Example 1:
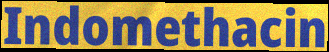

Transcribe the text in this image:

Indomethacin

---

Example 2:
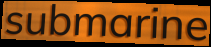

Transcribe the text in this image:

submarine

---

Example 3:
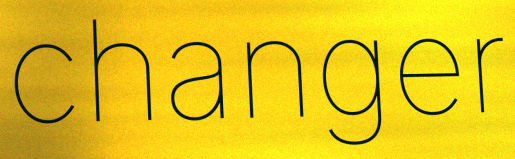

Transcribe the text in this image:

changer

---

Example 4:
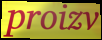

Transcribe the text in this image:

proizv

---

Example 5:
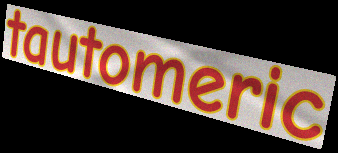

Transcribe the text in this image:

tautomeric